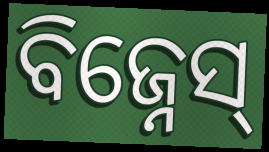
ବିଜ୍ନେସ୍